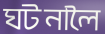
ঘটনালৈ